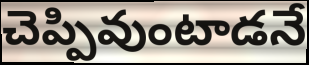
చెప్పివుంటాడనే